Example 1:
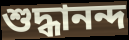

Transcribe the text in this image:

শুদ্ধানন্দ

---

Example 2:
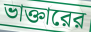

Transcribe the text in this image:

ভাক্তারের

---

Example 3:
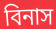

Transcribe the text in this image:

বিনাস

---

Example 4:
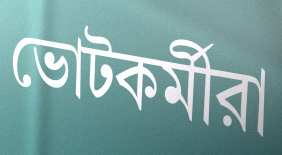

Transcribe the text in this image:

ভোটকর্মীরা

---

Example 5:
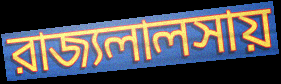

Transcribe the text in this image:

রাজ্যলালসায়